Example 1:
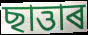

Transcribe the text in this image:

ছাত্তাৰ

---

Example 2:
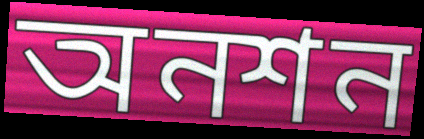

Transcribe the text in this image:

অনশন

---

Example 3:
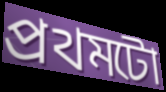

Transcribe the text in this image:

প্ৰথমটো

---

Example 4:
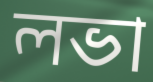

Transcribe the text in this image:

লভা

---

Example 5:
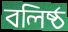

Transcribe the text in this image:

বলিষ্ঠ